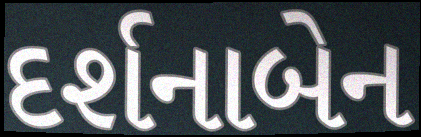
દર્શનાબેન